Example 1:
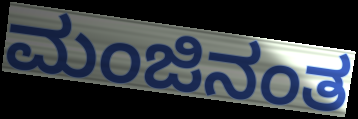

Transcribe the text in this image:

ಮಂಜಿನಂತ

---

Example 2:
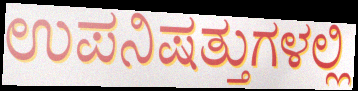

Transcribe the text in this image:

ಉಪನಿಷತ್ತುಗಳಲ್ಲಿ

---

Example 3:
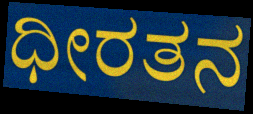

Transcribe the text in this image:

ಧೀರತನ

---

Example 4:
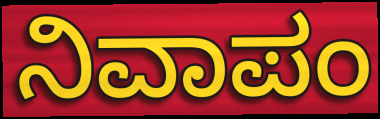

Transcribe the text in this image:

ನಿವಾಪಂ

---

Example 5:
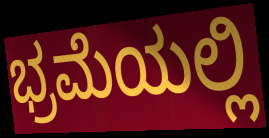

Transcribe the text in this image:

ಭ್ರಮೆಯಲ್ಲಿ